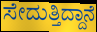
ಸೇದುತ್ತಿದ್ದಾನೆ